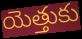
యెత్తుకు